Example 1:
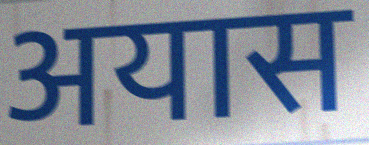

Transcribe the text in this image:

अयास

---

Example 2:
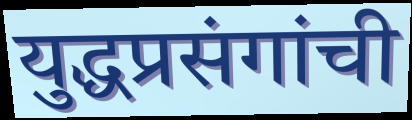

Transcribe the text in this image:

युद्धप्रसंगांची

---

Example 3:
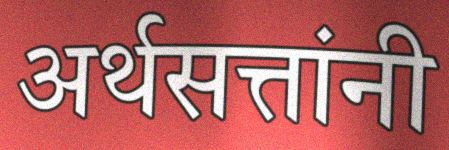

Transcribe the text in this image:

अर्थसत्तांनी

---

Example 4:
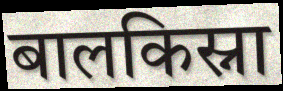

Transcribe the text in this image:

बालकिस्ना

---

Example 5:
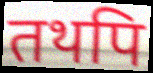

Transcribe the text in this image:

तथपि